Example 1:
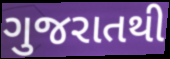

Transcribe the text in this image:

ગુજરાતથી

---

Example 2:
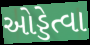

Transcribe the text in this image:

ઓડ્ડેત્વા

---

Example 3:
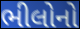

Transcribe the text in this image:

ભીલોનો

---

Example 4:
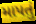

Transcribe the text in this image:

માપતું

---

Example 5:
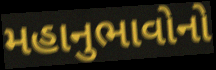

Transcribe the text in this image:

મહાનુભાવોનો